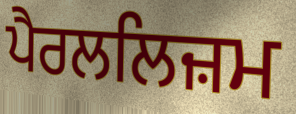
ਪੈਰਲਲਿਜ਼ਮ